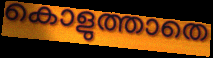
കൊളുത്താതെ